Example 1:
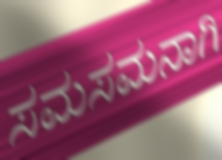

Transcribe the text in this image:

ಸಮಸಮನಾಗಿ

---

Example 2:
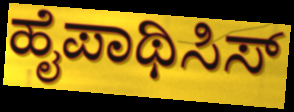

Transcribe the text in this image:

ಹೈಪಾಥಿಸಿಸ್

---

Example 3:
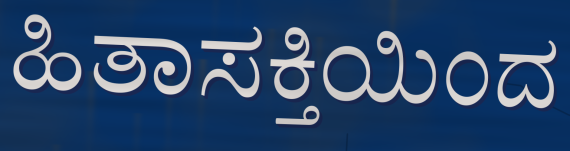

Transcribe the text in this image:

ಹಿತಾಸಕ್ತಿಯಿಂದ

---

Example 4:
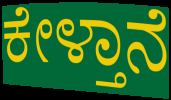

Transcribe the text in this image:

ಕೇಳ್ತಾನೆ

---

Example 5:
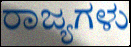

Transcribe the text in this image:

ರಾಜ್ಯಗಳು